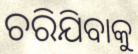
ଚରିଯିବାକୁ